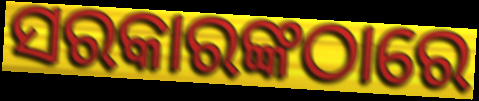
ସରକାରଙ୍କଠାରେ